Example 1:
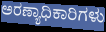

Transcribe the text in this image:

ಅರಣ್ಯಾಧಿಕಾರಿಗಳು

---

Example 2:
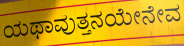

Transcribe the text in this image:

ಯಥಾವುತ್ತನಯೇನೇವ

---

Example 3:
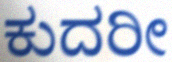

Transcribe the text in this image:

ಕುದರೀ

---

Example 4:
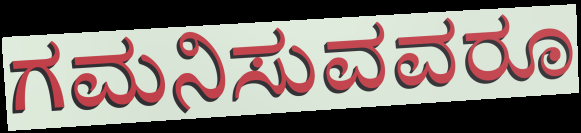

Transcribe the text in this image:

ಗಮನಿಸುವವರೂ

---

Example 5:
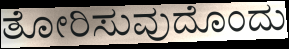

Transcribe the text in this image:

ತೋರಿಸುವುದೊಂದು